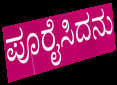
ಪೂರೈಸಿದನು